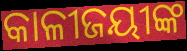
କାଳୀଜୟୀଙ୍କ